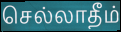
செல்லாதீம்